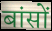
बांसों